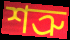
শত্ৰু